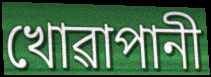
খোৱাপানী